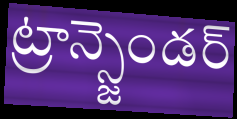
ట్రాన్స్జెండర్